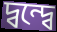
দ্বন্দ্বে